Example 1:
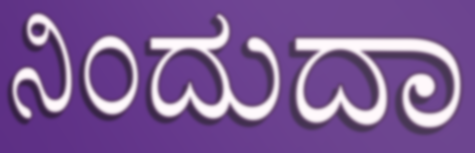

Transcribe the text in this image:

ನಿಂದುದಾ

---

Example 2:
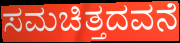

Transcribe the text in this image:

ಸಮಚಿತ್ತದವನೆ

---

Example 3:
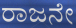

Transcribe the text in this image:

ರಾಜನೇ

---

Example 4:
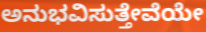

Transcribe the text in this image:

ಅನುಭವಿಸುತ್ತೇವೆಯೇ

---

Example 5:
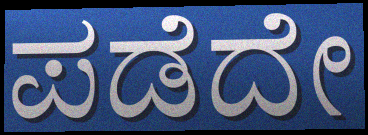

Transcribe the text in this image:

ಪಡೆದೇ